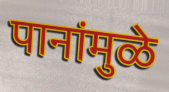
पानांमुळे